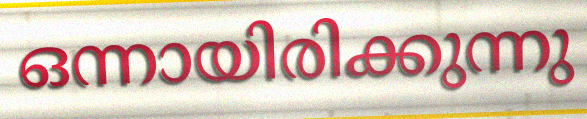
ഒന്നായിരിക്കുന്നു